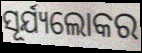
ସୂର୍ଯ୍ୟଲୋକର